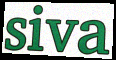
siva